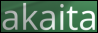
akaita